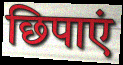
छिपाएं